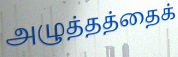
அழுத்தத்தைக்